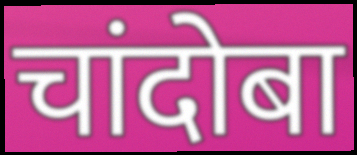
चांदोबा